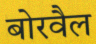
बोरवैल